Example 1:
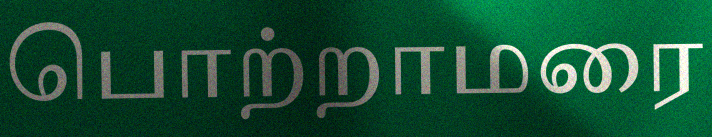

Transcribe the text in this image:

பொற்றாமரை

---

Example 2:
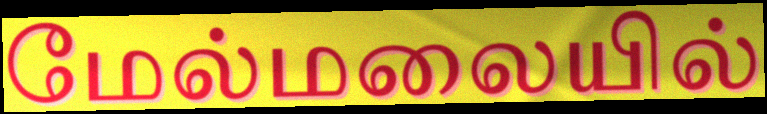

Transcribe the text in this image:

மேல்மலையில்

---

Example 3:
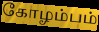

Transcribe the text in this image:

கோழம்பம்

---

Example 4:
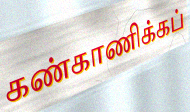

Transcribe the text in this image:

கண்காணிக்கப்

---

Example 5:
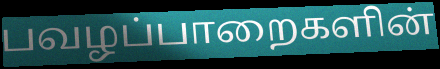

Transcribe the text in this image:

பவழப்பாறைகளின்